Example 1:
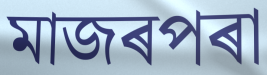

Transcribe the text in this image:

মাজৰপৰা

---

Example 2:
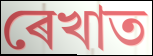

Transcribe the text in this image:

ৰেখাত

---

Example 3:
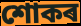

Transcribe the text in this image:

শোকৰ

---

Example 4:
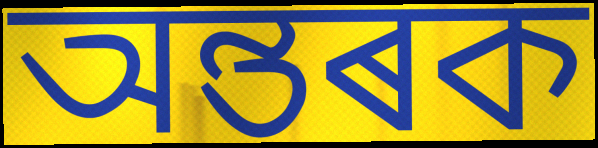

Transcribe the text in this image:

অন্তৰক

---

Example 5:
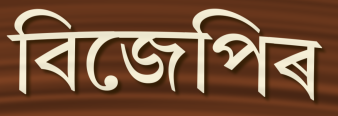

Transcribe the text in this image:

বিজেপিৰ